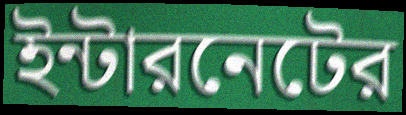
ইন্টারনেটের